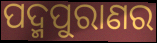
ପଦ୍ମପୁରାଣର